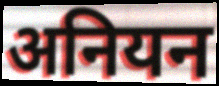
अनियन